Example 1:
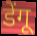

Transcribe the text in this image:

डेंगू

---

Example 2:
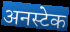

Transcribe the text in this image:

अनस्टेक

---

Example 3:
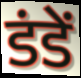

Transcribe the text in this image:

डंडें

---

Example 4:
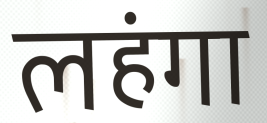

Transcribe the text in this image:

लहंगा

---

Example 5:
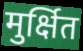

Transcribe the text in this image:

मुर्क्षित